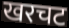
खरचट